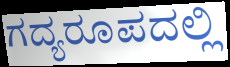
ಗದ್ಯರೂಪದಲ್ಲಿ